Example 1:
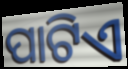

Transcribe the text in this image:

ପାଟିଏ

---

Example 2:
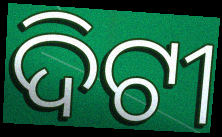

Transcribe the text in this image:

ଦିଟୀ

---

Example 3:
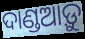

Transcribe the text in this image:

ଦାଣ୍ଡଆଡ଼ୁ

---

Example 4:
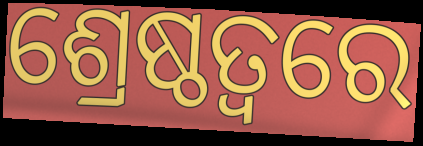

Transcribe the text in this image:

ଶ୍ରେଷ୍ଠତ୍ୱରେ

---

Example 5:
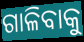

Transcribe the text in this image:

ଗାଳିବାକୁ